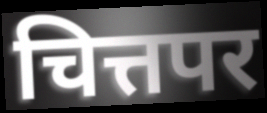
चित्तपर